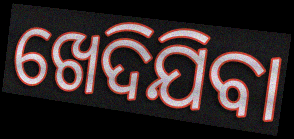
ଖେଦିଯିବା